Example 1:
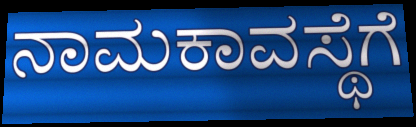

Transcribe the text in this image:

ನಾಮಕಾವಸ್ಥೆಗೆ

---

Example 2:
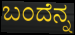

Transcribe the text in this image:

ಬಂದೆನ್ನ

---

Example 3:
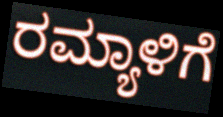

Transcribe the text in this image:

ರಮ್ಯಾಳಿಗೆ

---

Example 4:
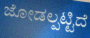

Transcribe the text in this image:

ಜೋಡಲ್ಪಟ್ಟಿದೆ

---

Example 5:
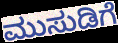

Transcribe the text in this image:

ಮುಸುಡಿಗೆ